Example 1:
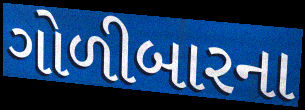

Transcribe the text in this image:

ગોળીબારના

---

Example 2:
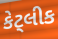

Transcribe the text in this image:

કેટ્લીક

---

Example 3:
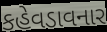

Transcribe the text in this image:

કહેવડાવનાર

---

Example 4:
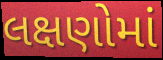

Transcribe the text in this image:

લક્ષણોમાં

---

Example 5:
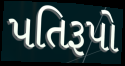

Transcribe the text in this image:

પતિરૂપો